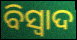
ବିସ୍ୱାଦ